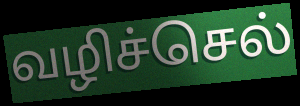
வழிச்செல்